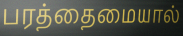
பரத்தைமையால்